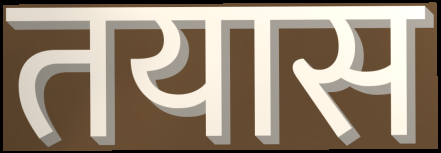
तयास